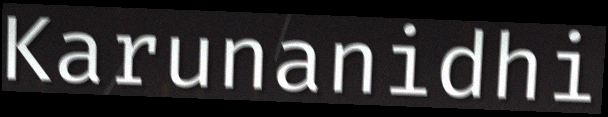
Karunanidhi